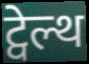
ट्वेल्थ